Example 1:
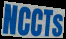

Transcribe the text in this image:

NCCTs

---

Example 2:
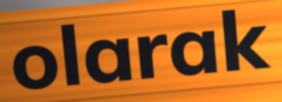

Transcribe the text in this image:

olarak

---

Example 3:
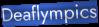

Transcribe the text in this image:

Deaflympics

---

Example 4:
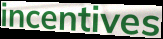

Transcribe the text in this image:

incentives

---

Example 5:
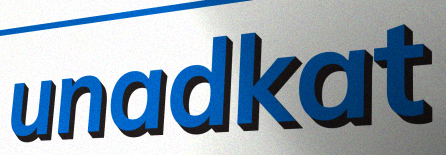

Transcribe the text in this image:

unadkat